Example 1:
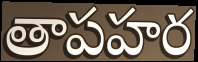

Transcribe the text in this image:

తాపహర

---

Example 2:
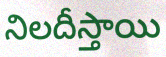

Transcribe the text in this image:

నిలదీస్తాయి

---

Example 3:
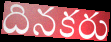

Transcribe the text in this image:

దినకరు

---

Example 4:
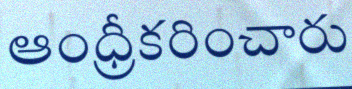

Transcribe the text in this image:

ఆంధ్రీకరించారు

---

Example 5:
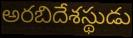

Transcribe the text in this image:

అరబిదేశస్థుడు